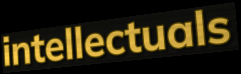
intellectuals